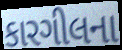
કારગીલના